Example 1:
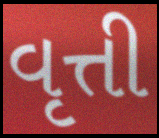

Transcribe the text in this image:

વૃત્તી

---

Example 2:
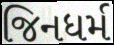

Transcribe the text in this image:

જિનધર્મ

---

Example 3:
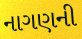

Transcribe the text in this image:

નાગણની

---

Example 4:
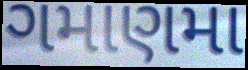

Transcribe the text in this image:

ગમાણમા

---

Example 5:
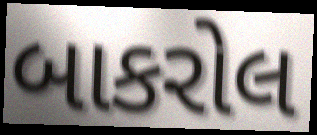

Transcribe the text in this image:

બાકરોલ